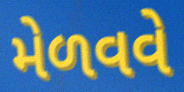
મેળવવે